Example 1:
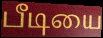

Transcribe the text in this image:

பீடியை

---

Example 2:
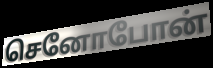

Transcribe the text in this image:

செனோபோன்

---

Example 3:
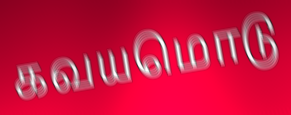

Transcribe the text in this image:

கவயமொடு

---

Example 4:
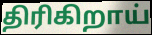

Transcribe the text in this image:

திரிகிறாய்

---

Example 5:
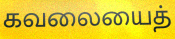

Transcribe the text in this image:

கவலையைத்